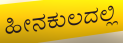
ಹೀನಕುಲದಲ್ಲಿ